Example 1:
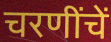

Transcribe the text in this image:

चरणींचें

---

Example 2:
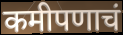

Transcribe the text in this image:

कमीपणाचं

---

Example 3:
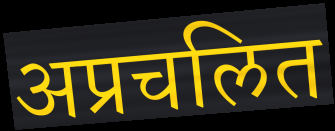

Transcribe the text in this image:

अप्रचलित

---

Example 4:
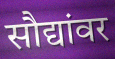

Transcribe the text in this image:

सौद्यांवर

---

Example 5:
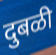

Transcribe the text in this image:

दुबळी